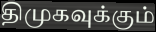
திமுகவுக்கும்